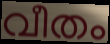
വീതം